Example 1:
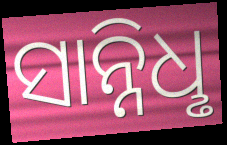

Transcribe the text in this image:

ସାନ୍ନିଧୢ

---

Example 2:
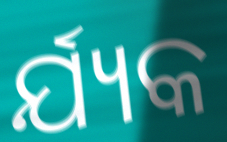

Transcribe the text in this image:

ର୍ଯ୍ୟକ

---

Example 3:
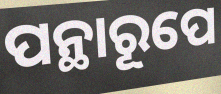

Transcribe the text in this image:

ପନ୍ଥାରୂପେ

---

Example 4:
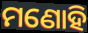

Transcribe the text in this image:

ମଣୋହି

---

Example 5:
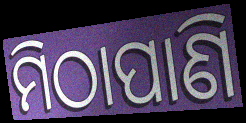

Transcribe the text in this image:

ମିଠାପାଣି